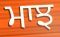
ਮਾਝ